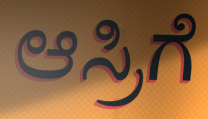
ಆಸ್ರಿಗೆ